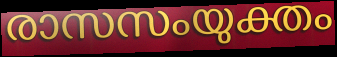
രാസസംയുക്തം